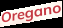
Oregano